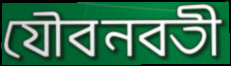
যৌবনবতী